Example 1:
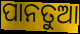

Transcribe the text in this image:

ପାନତୁଆ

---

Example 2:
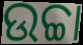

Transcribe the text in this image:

ଉଚ୍ଚା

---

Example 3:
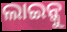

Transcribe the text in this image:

ଲାଇନ୍କୁ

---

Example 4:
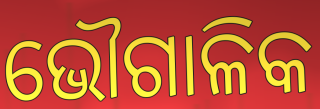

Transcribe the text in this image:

ଭୌଗାଳିକ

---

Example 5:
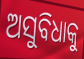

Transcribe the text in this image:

ଅସୁବିଧାକୁ